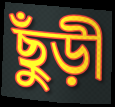
ছুঁড়ী